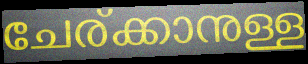
ചേര്ക്കാനുള്ള